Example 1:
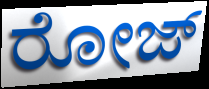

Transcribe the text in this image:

ರೋಜ್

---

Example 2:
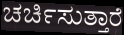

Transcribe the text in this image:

ಚರ್ಚಿಸುತ್ತಾರೆ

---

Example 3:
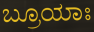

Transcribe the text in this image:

ಬ್ರೂಯಾಃ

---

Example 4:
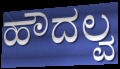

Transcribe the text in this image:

ಹೌದಲ್ವ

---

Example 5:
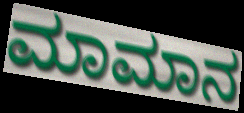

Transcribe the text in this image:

ಮಾಮಾನ